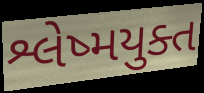
શ્લેષ્મયુક્ત